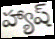
హ్యాష్